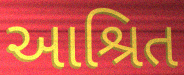
આશ્રિત